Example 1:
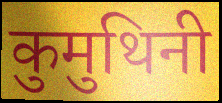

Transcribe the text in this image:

कुमुथिनी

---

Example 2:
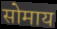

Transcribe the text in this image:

सोमाय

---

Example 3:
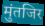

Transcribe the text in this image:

मुंतजिर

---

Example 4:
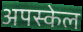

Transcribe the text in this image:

अपस्केल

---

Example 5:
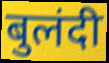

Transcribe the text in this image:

बुलंदी